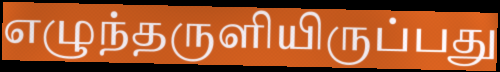
எழுந்தருளியிருப்பது